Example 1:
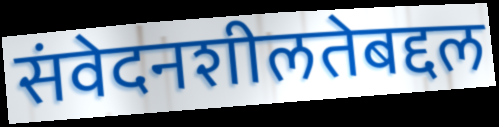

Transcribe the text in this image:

संवेदनशीलतेबद्दल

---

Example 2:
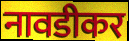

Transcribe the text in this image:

नावडीकर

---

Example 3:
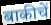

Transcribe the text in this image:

बाकीचें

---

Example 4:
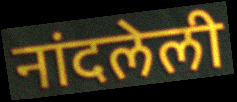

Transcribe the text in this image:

नांदलेली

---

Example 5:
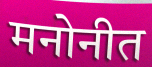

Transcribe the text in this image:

मनोनीत